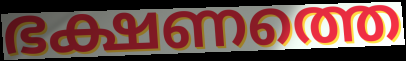
ഭക്ഷണത്തെ